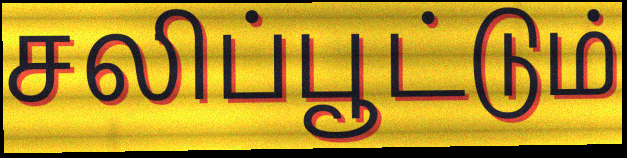
சலிப்பூட்டும்